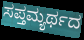
ಸಪ್ತಮ್ಯರ್ಥದ